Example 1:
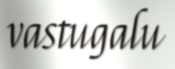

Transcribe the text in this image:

vastugalu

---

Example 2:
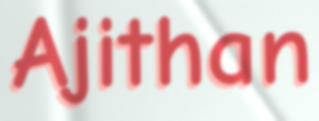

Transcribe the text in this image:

Ajithan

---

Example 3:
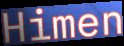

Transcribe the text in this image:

Himen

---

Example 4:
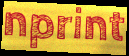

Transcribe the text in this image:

nprint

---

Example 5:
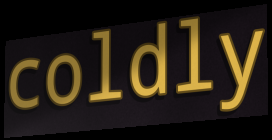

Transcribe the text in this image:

coldly